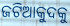
ଜଟିଆକୁଦକୁ